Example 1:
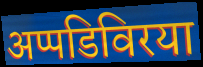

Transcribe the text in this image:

अप्पडिविरया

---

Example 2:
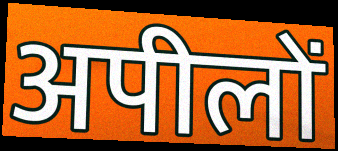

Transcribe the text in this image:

अपीलों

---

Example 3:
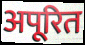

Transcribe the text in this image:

अपूरित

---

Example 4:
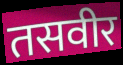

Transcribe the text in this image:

तसवीर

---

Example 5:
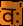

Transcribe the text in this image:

वः॑